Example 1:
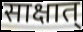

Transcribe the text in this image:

साक्षात्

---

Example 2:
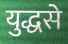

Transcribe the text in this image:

युद्धसे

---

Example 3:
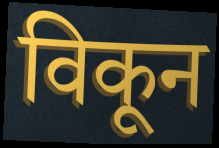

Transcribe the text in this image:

विकून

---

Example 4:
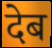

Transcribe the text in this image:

देब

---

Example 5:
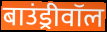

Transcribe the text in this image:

बाउंड्रीवॉल